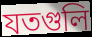
যতগুলি